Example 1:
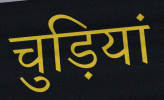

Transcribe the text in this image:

चुड़ियां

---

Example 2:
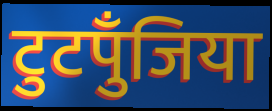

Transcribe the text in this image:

टुटपुँजिया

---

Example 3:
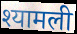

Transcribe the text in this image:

श्यामली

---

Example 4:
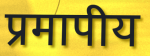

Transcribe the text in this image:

प्रमापीय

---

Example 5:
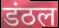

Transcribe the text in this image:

डंठल